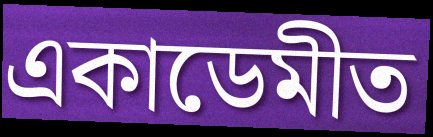
একাডেমীত